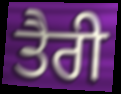
ਤੈਰੀ